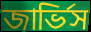
জার্ভিস